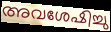
അവശേഷിച്ചു